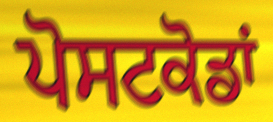
ਪੋਸਟਕੋਡਾਂ